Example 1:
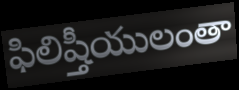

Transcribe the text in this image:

ఫిలిష్తీయులంతా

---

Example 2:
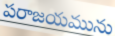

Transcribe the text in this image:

పరాజయమును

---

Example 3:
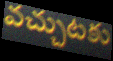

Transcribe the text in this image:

వచ్చుటకు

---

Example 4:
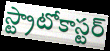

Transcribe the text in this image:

స్ట్రాటోకాస్టర్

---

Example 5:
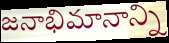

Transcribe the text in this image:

జనాభిమానాన్ని